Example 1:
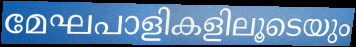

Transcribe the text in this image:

മേഘപാളികളിലൂടെയും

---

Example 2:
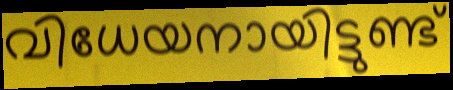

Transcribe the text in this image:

വിധേയനായിട്ടുണ്ട്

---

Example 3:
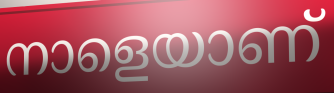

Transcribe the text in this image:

നാളെയാണ്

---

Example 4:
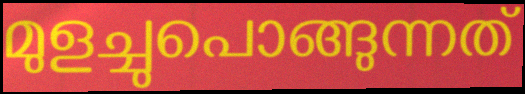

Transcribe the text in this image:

മുളച്ചുപൊങ്ങുന്നത്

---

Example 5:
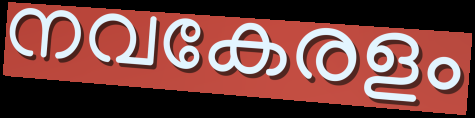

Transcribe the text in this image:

നവകേരളം